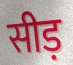
सीड़